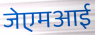
जेएमआई